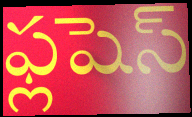
ఫ్లషెస్